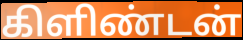
கிளிண்டன்